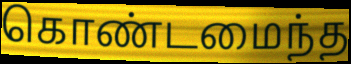
கொண்டமைந்த